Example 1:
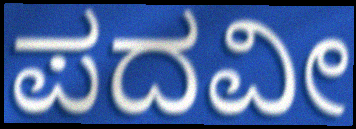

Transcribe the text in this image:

ಪದವೀ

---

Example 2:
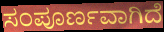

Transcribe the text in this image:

ಸಂಪೂರ್ಣವಾಗಿದೆ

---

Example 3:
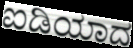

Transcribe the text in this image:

ಐಡಿಯಾದ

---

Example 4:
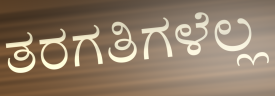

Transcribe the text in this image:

ತರಗತಿಗಳೆಲ್ಲ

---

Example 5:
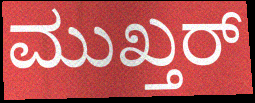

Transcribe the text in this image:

ಮುಖ್ತರ್